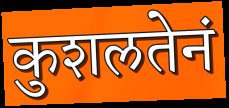
कुशलतेनं